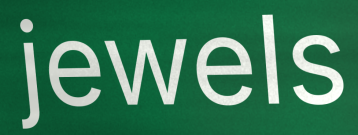
jewels